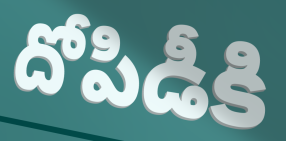
దోపిడీకి